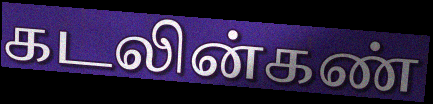
கடலின்கண்